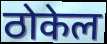
ठोकेल